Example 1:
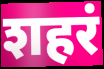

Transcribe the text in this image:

शहरं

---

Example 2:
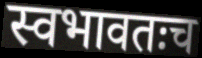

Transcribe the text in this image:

स्वभावतःच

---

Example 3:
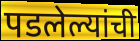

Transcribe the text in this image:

पडलेल्यांची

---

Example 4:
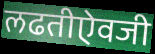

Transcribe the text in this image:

लढतीऐवजी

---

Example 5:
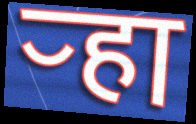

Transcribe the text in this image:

ऱ्हा